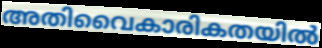
അതിവൈകാരികതയിൽ